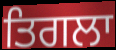
ਤਿਗਲਾ